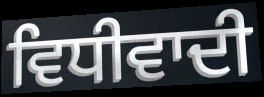
ਵਿਧੀਵਾਦੀ